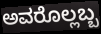
ಅವರೊಲ್ಲಬ್ಬ